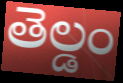
తెల్డం